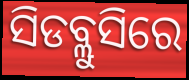
ସିଡବ୍ଲୁସିରେ